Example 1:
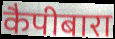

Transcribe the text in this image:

कैपीबारा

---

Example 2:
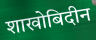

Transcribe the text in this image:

शाखोबिदीन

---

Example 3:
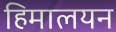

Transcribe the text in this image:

हिमालयन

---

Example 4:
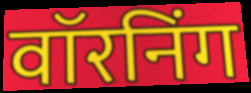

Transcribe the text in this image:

वॉरनिंग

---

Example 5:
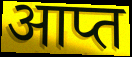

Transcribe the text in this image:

आप्त